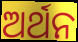
ଅର୍ଥନ